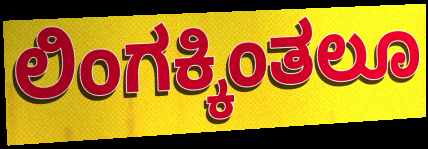
ಲಿಂಗಕ್ಕಿಂತಲೂ